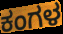
ಕಂಗಳ